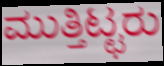
ಮುತ್ತಿಟ್ಟರು